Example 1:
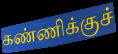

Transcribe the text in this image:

கண்ணிக்குச்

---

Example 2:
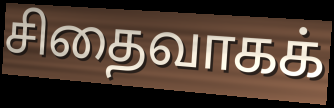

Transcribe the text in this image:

சிதைவாகக்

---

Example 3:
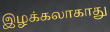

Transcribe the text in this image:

இழக்கலாகாது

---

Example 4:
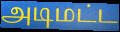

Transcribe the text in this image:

அடிமட்ட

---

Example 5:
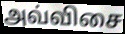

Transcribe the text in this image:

அவ்விசை